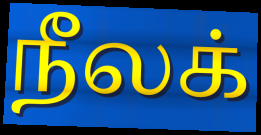
நீலக்